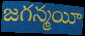
జగన్మయీ